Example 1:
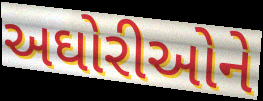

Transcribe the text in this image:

અઘોરીઓને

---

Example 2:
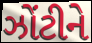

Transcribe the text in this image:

ઝોંટીને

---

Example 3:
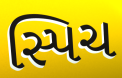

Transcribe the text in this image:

સ્પિચ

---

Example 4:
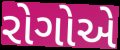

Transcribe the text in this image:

રોગોએ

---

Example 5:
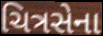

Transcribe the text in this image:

ચિત્રસેના